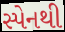
સ્પેનથી